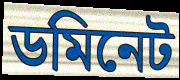
ডমিনেট